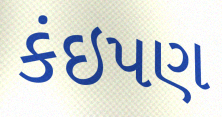
કંઇપણ